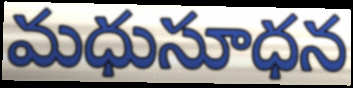
మధుసూధన